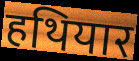
हथियार